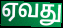
ஏவது